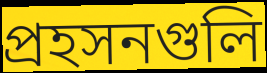
প্রহসনগুলি